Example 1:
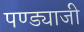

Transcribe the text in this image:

पण्ड्याजी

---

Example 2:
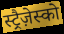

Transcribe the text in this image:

स्ट्रैज़ेस्को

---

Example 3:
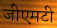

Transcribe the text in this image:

जीएमटी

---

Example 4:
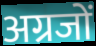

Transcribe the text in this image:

अग्रजों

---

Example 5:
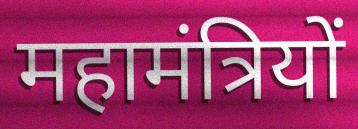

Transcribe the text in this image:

महामंत्रियों